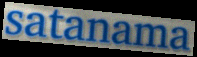
satanama